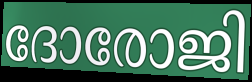
ദോരോജി